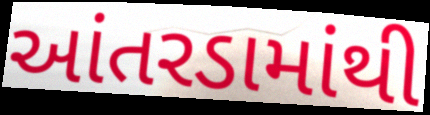
આંતરડામાંથી